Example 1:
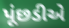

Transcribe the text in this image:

પૂંછડીએ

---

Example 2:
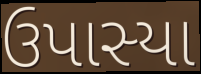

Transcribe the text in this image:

ઉપાસ્યા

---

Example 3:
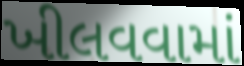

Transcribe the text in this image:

ખીલવવામાં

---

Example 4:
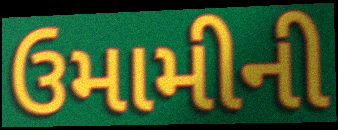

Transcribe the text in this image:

ઉમામીની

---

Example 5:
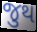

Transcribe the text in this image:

જુથ